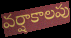
వర్షాకాలపు